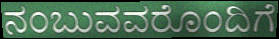
ನಂಬುವವರೊಂದಿಗೆ